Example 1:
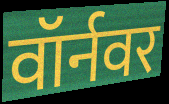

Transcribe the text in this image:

वॉर्नवर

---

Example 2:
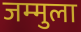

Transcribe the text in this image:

जम्मुला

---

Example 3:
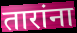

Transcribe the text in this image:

तारांना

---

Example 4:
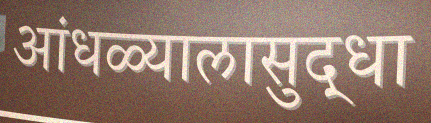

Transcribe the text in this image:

आंधळ्यालासुद्धा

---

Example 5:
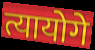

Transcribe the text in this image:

त्यायोगे